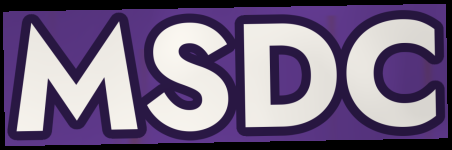
MSDC